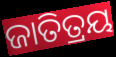
ଜାତିତ୍ରୟ